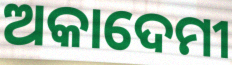
ଅକାଦେମୀ